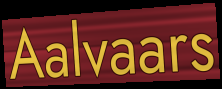
Aalvaars